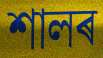
শালৰ